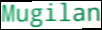
Mugilan